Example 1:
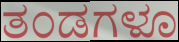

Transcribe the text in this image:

ತಂಡಗಳೂ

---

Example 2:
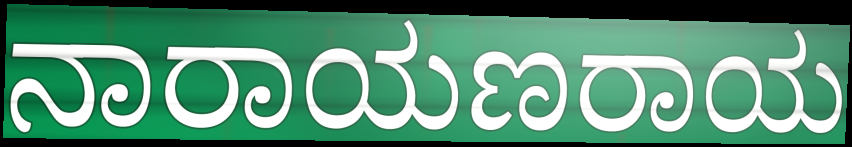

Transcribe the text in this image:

ನಾರಾಯಣರಾಯ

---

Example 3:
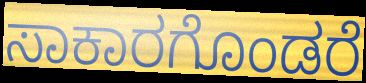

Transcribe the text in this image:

ಸಾಕಾರಗೊಂಡರೆ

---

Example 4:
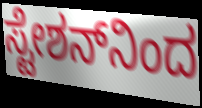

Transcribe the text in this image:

ಸ್ಟೇಶನ್‌ನಿಂದ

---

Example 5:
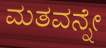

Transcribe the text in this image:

ಮತವನ್ನೇ